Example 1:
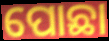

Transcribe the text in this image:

ପୋଛା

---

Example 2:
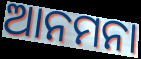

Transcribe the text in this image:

ଆନମନା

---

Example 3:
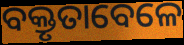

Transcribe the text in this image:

ବକ୍ତୃତାବେଳେ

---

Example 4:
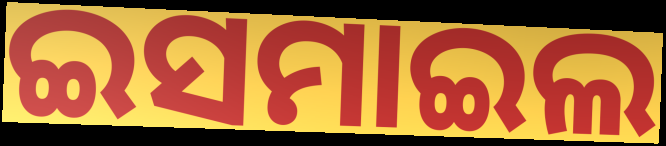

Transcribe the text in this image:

ଇସମାଇଲ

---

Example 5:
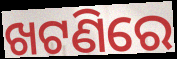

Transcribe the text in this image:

ଖଟଣିରେ